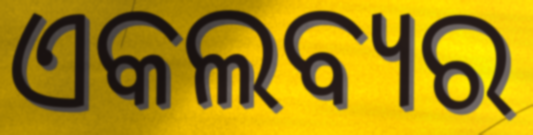
ଏକଲବ୍ୟର